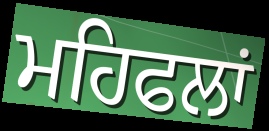
ਮਹਿਫਲਾਂ